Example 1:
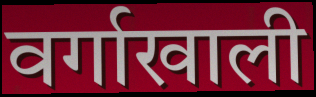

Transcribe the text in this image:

वर्गाखाली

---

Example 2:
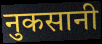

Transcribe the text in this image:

नुकसानी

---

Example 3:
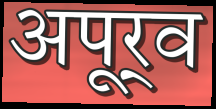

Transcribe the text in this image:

अपूर्व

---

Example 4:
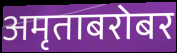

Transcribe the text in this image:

अमृताबरोबर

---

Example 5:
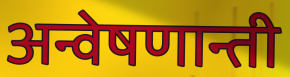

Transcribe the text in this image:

अन्वेषणान्ती